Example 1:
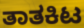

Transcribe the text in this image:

ತಾತಕಿಟ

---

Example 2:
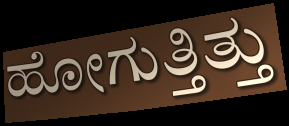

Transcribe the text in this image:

ಹೋಗುತ್ತಿತ್ತು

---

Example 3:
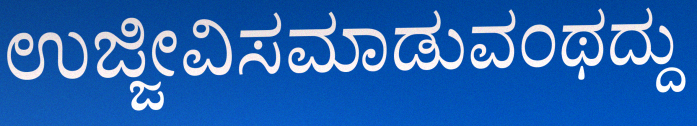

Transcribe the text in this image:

ಉಜ್ಜೀವಿಸಮಾಡುವಂಥದ್ದು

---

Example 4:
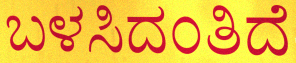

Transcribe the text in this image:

ಬಳಸಿದಂತಿದೆ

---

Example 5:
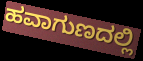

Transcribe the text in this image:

ಹವಾಗುಣದಲ್ಲಿ